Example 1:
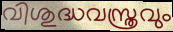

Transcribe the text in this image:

വിശുദ്ധവസ്ത്രവും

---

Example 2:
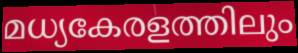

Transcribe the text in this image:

മധ്യകേരളത്തിലും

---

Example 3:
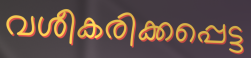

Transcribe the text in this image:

വശീകരിക്കപ്പെട്ട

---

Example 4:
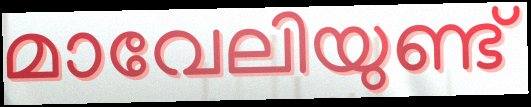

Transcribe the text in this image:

മാവേലിയുണ്ട്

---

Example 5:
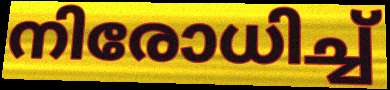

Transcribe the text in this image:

നിരോധിച്ച്